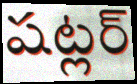
షట్లర్